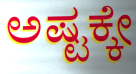
ಅಷ್ಟಕ್ಕೇ